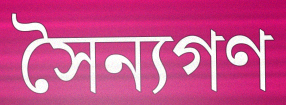
সৈন্যগণ